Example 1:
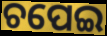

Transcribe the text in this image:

ଚପେଇ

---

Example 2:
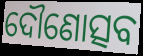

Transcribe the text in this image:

ଦୌଣୋତ୍ସବ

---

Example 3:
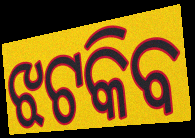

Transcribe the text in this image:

ଝଟକିବ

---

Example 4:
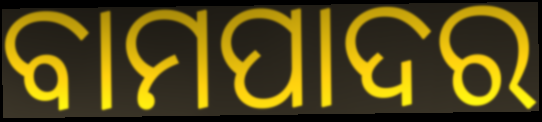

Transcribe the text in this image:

ବାମପାଦର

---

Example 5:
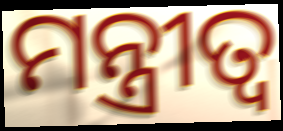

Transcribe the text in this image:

ମନ୍ତ୍ରୀତ୍ୱ